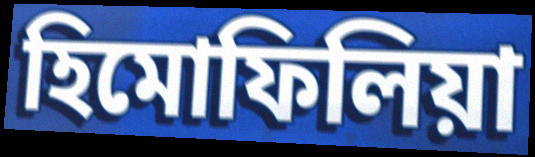
হিমোফিলিয়া